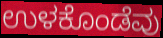
ಉಳಕೊಂಡೆವು